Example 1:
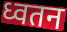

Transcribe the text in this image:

ध्वतन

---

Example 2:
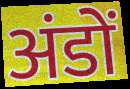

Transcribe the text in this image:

अंडों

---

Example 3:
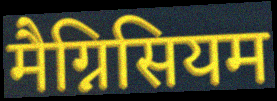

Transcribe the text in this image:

मैग्निसियम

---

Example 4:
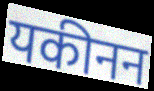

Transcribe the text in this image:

यकीनन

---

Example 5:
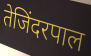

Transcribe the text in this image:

तेजिंदरपाल